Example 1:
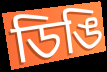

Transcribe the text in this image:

ডিঙি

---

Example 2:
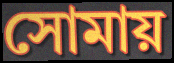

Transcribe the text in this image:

সোমায়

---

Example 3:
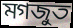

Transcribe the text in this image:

মগজুত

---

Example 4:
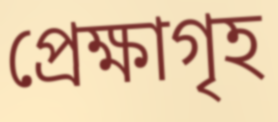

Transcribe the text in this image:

প্ৰেক্ষাগৃহ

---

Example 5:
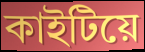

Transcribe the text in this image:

কাইটিয়ে